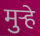
मुऱ्हे